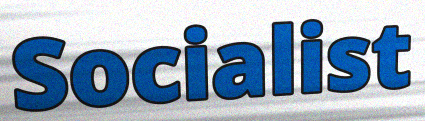
Socialist